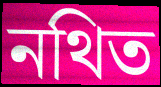
নথিত